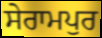
ਸੇਰਾਮਪੁਰ